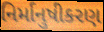
નિર્માનુષીકરણ